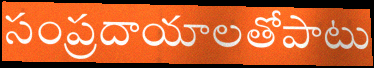
సంప్రదాయాలతోపాటు